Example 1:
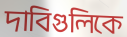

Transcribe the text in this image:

দাবিগুলিকে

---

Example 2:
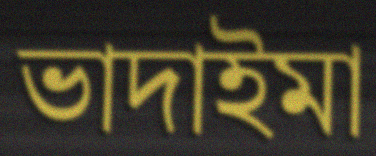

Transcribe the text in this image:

ভাদাইমা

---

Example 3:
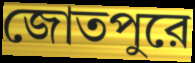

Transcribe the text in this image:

জোতপুরে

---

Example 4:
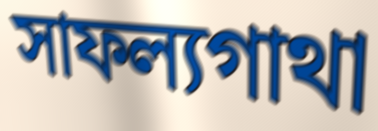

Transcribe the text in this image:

সাফল্যগাথা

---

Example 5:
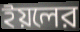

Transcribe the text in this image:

ইয়লের